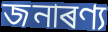
জনাৰণ্য